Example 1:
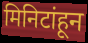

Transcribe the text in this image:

मिनिटांहून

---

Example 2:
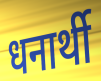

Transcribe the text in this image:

धनार्थी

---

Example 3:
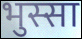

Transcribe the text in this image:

भुस्सा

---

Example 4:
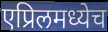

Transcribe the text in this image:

एप्रिलमध्येच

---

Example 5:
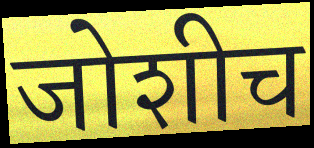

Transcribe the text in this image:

जोशीच